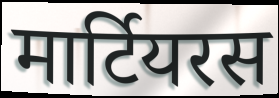
मार्टियरस